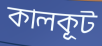
কালকূট